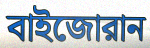
বাইজোরান